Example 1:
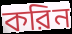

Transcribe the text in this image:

করিন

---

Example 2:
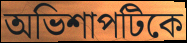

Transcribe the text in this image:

অভিশাপটিকে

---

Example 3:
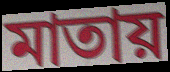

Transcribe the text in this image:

মাতায়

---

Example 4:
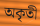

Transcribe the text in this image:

অকৃতী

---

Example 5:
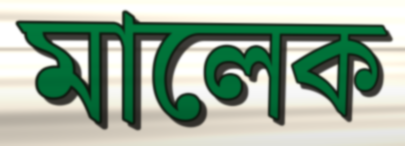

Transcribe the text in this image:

মালেক